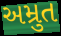
અમ્રુત